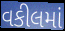
વકીલમાં